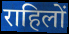
राहिलों